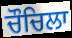
ਚੌਚਿਲਾ